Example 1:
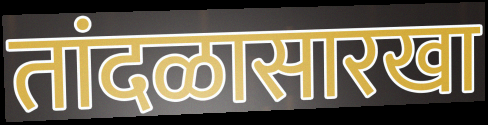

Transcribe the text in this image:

तांदळासारखा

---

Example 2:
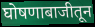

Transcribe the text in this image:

घोषणाबाजीतून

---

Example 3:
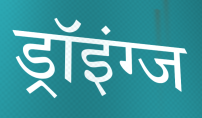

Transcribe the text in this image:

ड्रॉइंग्ज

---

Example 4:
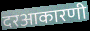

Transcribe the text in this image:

दरआकारणी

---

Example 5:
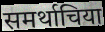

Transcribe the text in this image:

समर्थाचिया